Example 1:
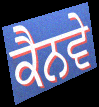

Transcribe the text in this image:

ਕੈਨਵੇ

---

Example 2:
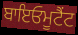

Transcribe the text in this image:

ਬਾਇਓਮੂਟੈਂਟ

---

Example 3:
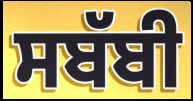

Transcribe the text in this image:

ਸਬੱਬੀ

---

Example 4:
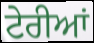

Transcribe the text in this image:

ਟੇਰੀਆਂ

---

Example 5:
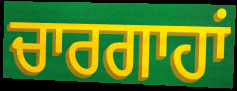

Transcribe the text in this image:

ਚਾਰਗਾਹਾਂ